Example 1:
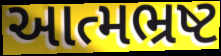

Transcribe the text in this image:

આત્મભ્રષ્ટ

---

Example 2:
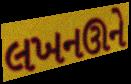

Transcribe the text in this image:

લખનઊને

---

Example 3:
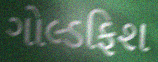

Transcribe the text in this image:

ગોલ્ડફિશ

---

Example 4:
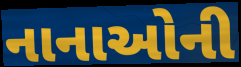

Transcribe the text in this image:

નાનાઓની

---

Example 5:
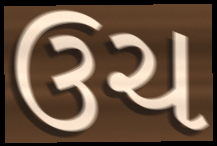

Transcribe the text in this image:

ઉચ